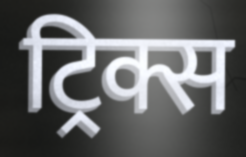
ट्रिक्स